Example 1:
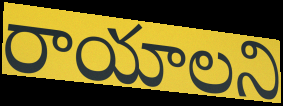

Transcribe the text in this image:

రాయాలని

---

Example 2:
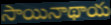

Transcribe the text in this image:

సాయినాథాయ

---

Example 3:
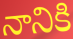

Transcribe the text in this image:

నానికి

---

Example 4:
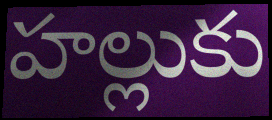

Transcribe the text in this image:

హల్లుకు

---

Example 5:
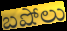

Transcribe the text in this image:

బషోలు